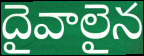
దైవాలైన